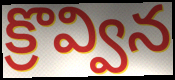
క్రొవ్విన